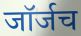
जॉर्जच